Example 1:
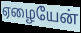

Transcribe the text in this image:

ஏழையேன்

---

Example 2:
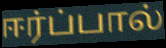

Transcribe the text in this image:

ஈர்ப்பால்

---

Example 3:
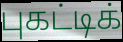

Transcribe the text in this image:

புகட்டிக்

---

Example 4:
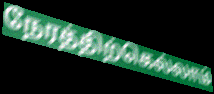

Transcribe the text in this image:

நேரத்திற்கெல்லாம்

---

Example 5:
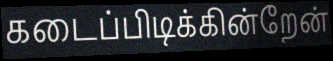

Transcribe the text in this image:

கடைப்பிடிக்கின்றேன்